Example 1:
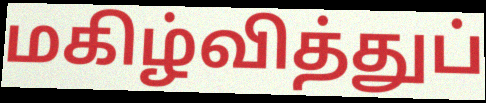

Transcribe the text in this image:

மகிழ்வித்துப்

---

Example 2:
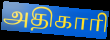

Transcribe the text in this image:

அதிகாரி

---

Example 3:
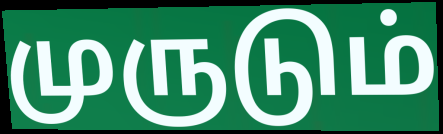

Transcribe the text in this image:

முருடும்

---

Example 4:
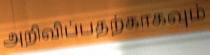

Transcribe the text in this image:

அறிவிப்பதற்காகவும்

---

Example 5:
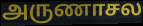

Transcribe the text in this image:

அருணாசல